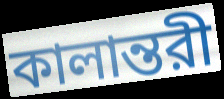
কালান্তরী